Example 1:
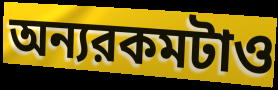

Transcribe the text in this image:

অন্যরকমটাও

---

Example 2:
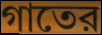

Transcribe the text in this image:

গাতের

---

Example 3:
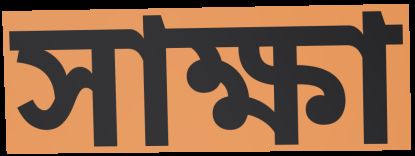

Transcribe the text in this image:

সাক্ষা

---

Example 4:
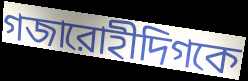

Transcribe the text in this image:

গজারোহীদিগকে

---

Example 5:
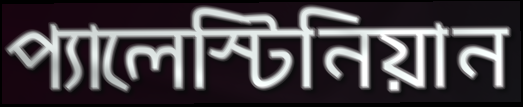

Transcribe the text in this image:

প্যালেস্টিনিয়ান